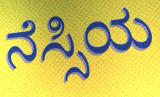
ನೆಸ್ಸಿಯ